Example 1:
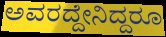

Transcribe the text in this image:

ಅವರದ್ದೇನಿದ್ದರೂ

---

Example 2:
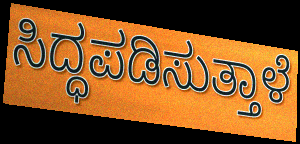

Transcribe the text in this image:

ಸಿದ್ಧಪಡಿಸುತ್ತಾಳೆ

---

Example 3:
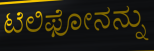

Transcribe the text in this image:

ಟೆಲಿಫೋನನ್ನು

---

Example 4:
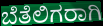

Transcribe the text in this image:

ಬೆತೆಲಿಗರಾಗಿ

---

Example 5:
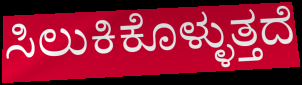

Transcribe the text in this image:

ಸಿಲುಕಿಕೊಳ್ಳುತ್ತದೆ